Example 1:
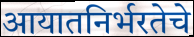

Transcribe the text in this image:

आयातनिर्भरतेचे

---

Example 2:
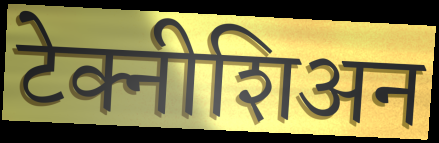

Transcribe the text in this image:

टेक्नीशिअन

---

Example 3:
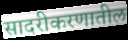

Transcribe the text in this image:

सादरीकरणातील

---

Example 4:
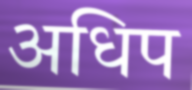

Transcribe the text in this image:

अधिप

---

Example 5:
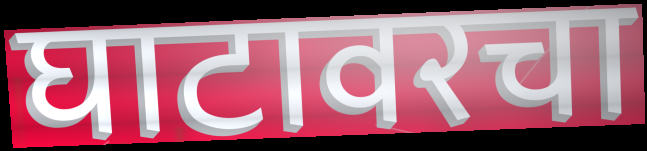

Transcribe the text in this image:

घाटावरचा